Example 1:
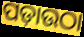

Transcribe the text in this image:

ପଡ଼ାଉଠା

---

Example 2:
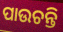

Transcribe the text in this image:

ପାଉଚନ୍ତି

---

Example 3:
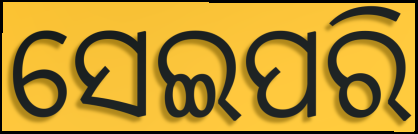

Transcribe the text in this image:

ସେଇପରି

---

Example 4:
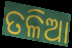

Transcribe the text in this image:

ତଳିଆ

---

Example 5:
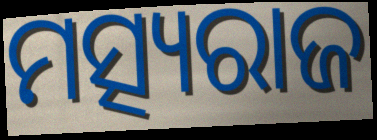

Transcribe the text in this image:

ମତ୍ସ୍ୟରାଜ